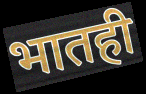
भातही